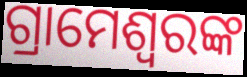
ଗ୍ରାମେଶ୍ୱରଙ୍କ